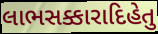
લાભસક્કારાદિહેતુ